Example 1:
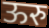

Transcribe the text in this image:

ऊरु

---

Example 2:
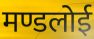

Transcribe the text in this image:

मण्डलोई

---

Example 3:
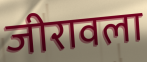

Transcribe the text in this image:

जीरावला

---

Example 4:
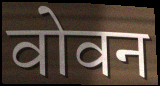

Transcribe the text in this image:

वोवन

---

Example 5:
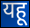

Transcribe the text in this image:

यहू